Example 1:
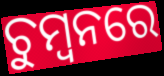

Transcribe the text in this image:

ଚୁମ୍ୱନରେ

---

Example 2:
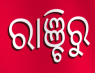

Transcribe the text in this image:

ରାଞ୍ଚିରୁ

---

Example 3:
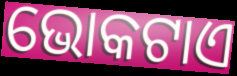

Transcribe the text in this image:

ଭୋକଟାଏ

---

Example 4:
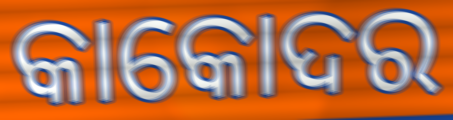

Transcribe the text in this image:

କାକୋଦର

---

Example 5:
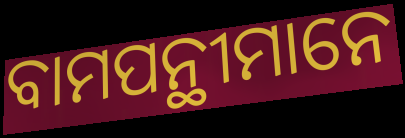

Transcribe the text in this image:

ବାମପନ୍ଥୀମାନେ